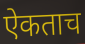
ऐकताच